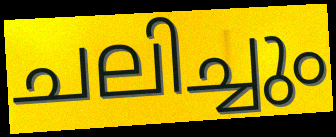
ചലിച്ചും